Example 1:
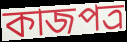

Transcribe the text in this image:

কাজপত্র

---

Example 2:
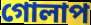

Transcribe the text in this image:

গোলাপ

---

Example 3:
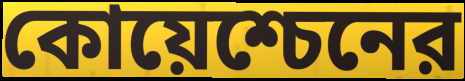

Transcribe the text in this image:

কোয়েশ্চেনের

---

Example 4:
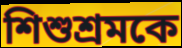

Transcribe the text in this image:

শিশুশ্রমকে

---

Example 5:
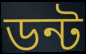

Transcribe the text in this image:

ডন্ট